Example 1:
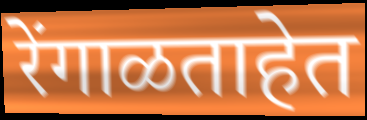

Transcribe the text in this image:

रेंगाळताहेत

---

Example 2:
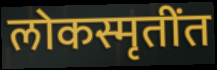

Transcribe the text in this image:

लोकस्मृतींत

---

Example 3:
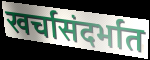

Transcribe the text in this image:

खर्चासंदर्भात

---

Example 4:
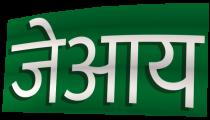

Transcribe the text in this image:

जेआय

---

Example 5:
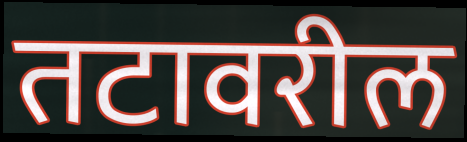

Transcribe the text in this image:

तटावरील